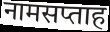
नामसप्ताह